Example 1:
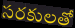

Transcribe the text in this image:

సరకులతో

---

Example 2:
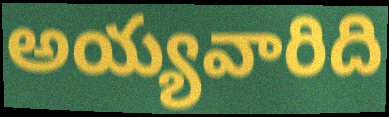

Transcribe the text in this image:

అయ్యవారిది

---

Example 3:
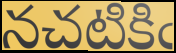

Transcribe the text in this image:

నచటికిఁ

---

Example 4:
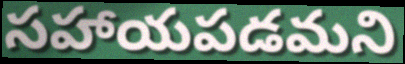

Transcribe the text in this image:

సహాయపడమని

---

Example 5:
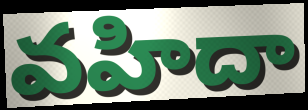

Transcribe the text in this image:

వహిదా